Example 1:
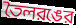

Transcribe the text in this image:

তৈলরঙের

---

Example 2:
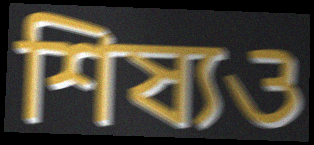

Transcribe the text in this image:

শিষ্যও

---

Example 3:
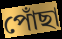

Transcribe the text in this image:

পোঁছা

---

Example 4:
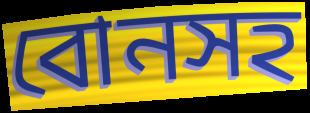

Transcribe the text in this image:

বোনসহ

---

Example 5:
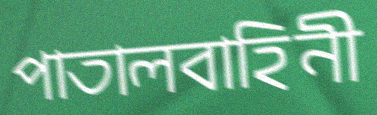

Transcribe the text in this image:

পাতালবাহিনী